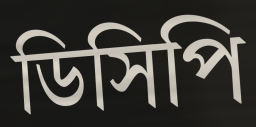
ডিসিপি